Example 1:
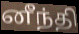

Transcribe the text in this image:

னீந்தி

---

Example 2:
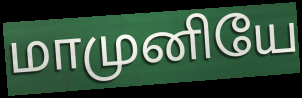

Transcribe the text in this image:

மாமுனியே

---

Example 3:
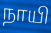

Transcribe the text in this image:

நாயி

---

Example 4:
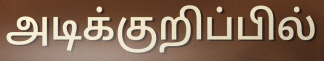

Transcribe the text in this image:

அடிக்குறிப்பில்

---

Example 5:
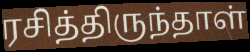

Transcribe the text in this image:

ரசித்திருந்தாள்